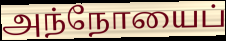
அந்நோயைப்